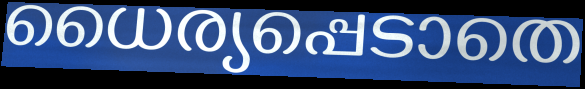
ധൈര്യപ്പെടാതെ